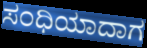
ಸಂಧಿಯಾದಾಗ